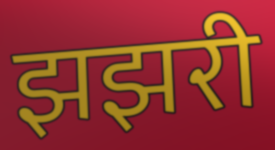
झझरी